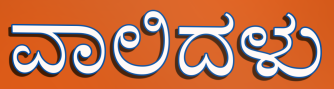
ವಾಲಿದಳು